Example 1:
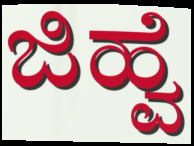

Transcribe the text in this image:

ಜಿಹ್ವೆ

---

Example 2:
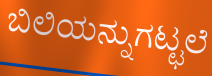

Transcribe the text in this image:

ಬಿಲಿಯನ್ನುಗಟ್ಟಲೆ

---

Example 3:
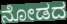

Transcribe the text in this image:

ನೋಡದ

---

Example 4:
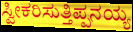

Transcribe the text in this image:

ಸ್ವೀಕರಿಸುತ್ತಿಪ್ಪನಯ್ಯ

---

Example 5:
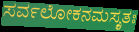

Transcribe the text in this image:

ಸರ್ವಲೋಕನಮಸ್ಕೃತಃ